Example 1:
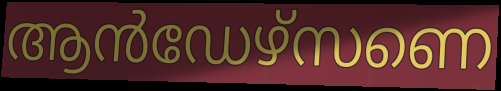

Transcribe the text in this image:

ആൻഡേഴ്സണെ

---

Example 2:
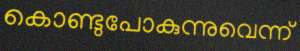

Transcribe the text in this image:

കൊണ്ടുപോകുന്നുവെന്ന്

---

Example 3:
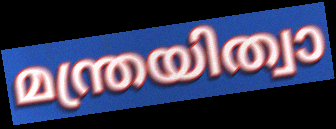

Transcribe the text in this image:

മന്ത്രയിത്വാ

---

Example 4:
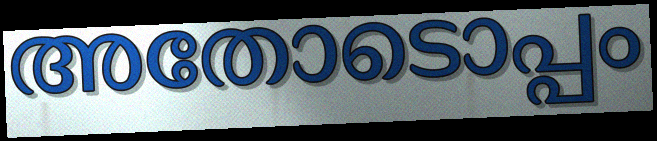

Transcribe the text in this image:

അതോടൊപ്പം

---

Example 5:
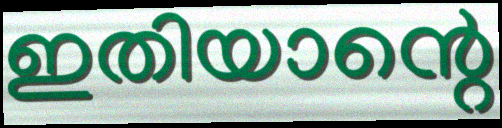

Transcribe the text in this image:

ഇതിയാന്റെ